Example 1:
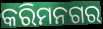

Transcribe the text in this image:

କରିମନଗର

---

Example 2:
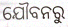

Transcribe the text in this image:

ଯୌବନରୁ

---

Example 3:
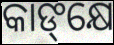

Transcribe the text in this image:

କାଙ୍‌କ୍ଷେ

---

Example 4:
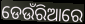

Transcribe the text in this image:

ଡେଉଁରିଆରେ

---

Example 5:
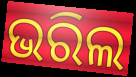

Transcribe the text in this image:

ଭରିଲ